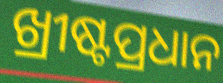
ଖ୍ରୀଷ୍ଟପ୍ରଧାନ